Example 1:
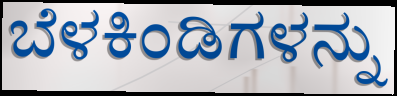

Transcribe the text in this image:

ಬೆಳಕಿಂಡಿಗಳನ್ನು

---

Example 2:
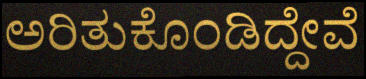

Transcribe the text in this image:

ಅರಿತುಕೊಂಡಿದ್ದೇವೆ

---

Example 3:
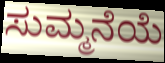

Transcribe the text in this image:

ಸುಮ್ಮನೆಯೆ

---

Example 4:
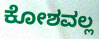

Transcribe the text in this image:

ಕೋಶವಲ್ಲ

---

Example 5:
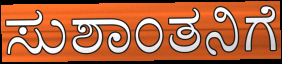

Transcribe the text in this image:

ಸುಶಾಂತನಿಗೆ